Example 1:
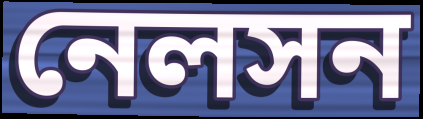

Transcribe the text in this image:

নেলসন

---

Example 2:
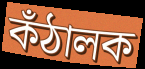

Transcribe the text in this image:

কঁঠালক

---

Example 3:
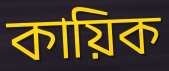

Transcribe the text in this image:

কায়িক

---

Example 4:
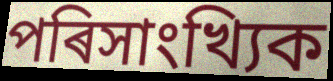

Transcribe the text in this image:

পৰিসাংখ্যিক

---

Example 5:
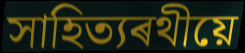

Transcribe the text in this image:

সাহিত্যৰথীয়ে